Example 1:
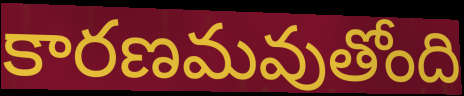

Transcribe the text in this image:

కారణమవుతోంది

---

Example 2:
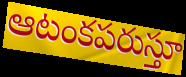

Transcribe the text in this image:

ఆటంకపరుస్తూ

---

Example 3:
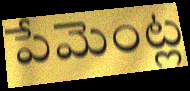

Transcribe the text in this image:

పేమెంట్ల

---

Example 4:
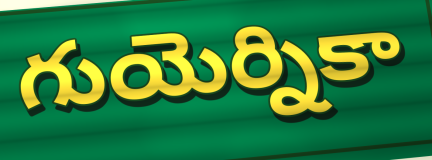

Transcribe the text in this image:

గుయెర్నికా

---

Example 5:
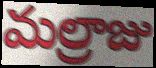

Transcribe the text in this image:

మల్రాజు